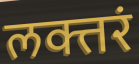
लक्तरं